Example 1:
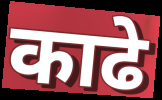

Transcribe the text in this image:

काढे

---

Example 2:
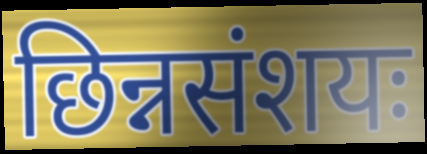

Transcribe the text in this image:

छिन्नसंशयः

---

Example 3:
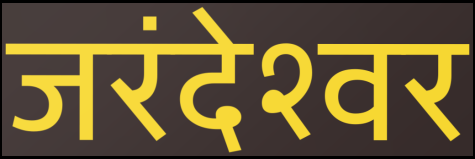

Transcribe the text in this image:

जरंदेश्वर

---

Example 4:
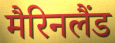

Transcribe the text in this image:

मैरिनलैंड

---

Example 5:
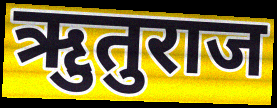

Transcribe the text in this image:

ऋुतुराज